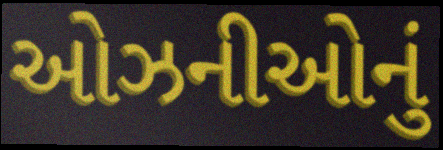
ઓઝનીઓનું